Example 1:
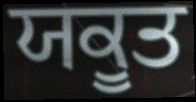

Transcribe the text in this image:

ਯਕੂਤ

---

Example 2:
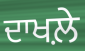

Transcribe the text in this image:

ਦਾਖਲ਼ੇ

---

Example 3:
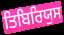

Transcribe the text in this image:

ਤਿਬਿਰਿਯੁਸ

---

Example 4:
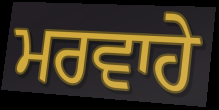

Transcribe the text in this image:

ਮਰਵਾਹੇ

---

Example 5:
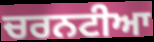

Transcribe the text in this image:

ਚਰਨਟੀਆ